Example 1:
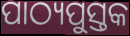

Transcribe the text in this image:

ପାଠ୍ୟପୁସ୍ତକ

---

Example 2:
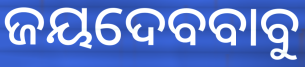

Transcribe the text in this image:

ଜୟଦେବବାବୁ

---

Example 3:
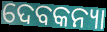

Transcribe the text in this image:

ଦେବକନ୍ୟା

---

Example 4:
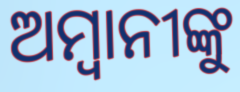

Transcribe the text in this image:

ଅମ୍ବାନୀଙ୍କୁ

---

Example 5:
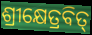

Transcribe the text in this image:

ଶ୍ରୀକ୍ଷେତ୍ରବିତ୍